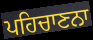
ਪਹਿਚਾਣਨਾ